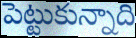
పెట్టుకున్నాది